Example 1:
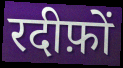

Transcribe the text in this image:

रदीफ़ों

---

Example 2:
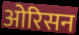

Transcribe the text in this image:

ओरिसन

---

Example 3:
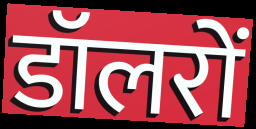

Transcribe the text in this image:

डॉलरों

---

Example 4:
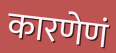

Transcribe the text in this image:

कारणेणं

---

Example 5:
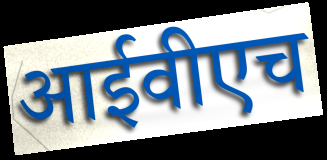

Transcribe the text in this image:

आईवीएच